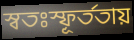
স্বতঃস্ফূর্ততায়